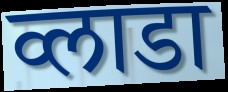
व्लाडा